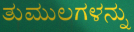
ತುಮುಲಗಳನ್ನು